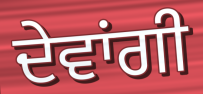
ਦੇਵਾਂਗੀ